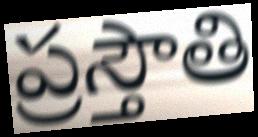
ప్రస్తౌతి